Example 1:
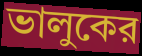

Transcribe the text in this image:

ভালুকের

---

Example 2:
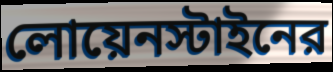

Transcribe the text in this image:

লোয়েনস্টাইনের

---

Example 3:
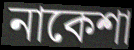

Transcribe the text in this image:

নাকেশা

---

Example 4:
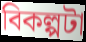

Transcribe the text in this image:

বিকল্পটা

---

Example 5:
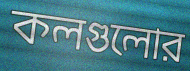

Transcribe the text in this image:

কলগুলোর